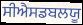
ਸੀਐਸਡਬਲਯੂ